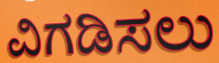
ವಿಗಡಿಸಲು